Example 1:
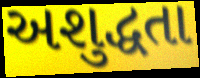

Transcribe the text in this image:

અશુદ્ધતા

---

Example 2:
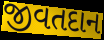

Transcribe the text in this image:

જીવતદાન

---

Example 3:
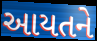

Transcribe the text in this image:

આયતને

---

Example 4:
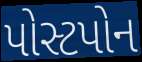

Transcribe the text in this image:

પોસ્ટપોન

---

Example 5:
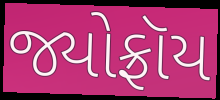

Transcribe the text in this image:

જ્યોફ્રૉય